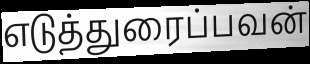
எடுத்துரைப்பவன்